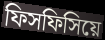
ফিসফিসিয়ে